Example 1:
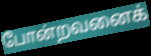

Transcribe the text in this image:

போன்றவனைக்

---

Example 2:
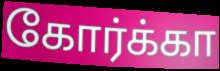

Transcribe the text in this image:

கோர்க்கா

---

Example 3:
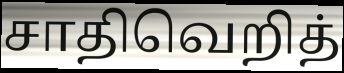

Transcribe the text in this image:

சாதிவெறித்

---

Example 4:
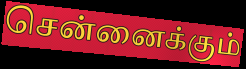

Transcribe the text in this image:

சென்னைக்கும்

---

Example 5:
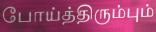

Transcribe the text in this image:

போய்த்திரும்பும்